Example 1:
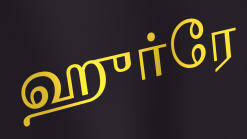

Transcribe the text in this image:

ஹுர்ரே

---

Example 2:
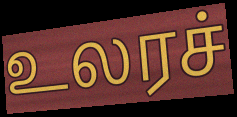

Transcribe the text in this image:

உலரச்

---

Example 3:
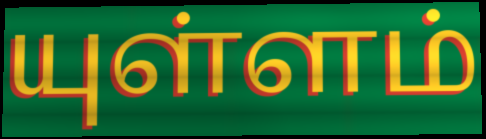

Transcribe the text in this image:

யுள்ளம்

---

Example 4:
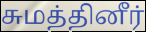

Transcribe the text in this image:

சுமத்தினீர்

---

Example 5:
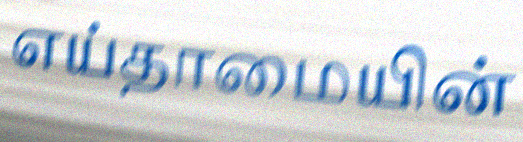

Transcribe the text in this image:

எய்தாமையின்